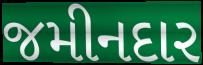
જમીનદાર